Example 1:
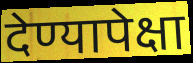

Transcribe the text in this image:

देण्यापेक्षा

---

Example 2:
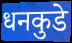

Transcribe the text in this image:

धनकुडे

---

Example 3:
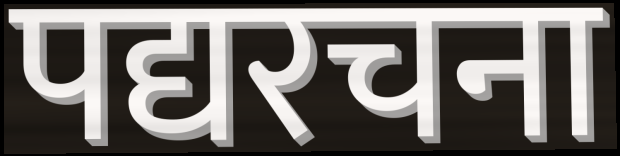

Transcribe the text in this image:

पद्यरचना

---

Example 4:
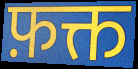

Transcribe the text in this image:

फ़क्त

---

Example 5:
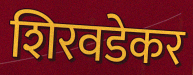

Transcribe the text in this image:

शिरवडेकर